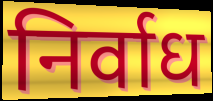
निर्वाध